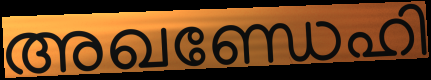
അഖണ്ഡേഹി